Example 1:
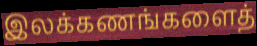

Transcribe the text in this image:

இலக்கணங்களைத்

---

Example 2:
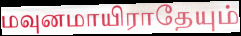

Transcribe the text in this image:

மவுனமாயிராதேயும்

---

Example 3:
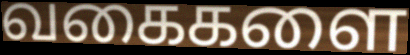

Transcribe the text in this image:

வகைகளை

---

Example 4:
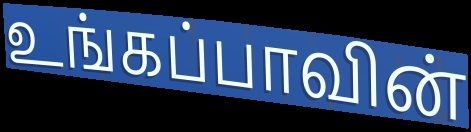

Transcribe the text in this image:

உங்கப்பாவின்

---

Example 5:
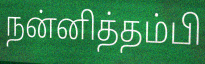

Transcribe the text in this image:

நன்னித்தம்பி